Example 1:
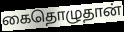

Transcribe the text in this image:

கைதொழுதான்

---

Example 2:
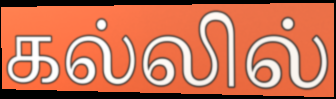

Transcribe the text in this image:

கல்லில்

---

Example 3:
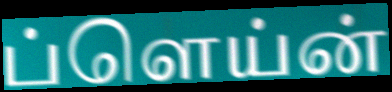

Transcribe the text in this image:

ப்ளெய்ன்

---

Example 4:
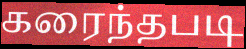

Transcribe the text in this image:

கரைந்தபடி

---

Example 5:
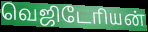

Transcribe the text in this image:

வெஜிடேரியன்